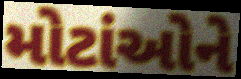
મોટાંઓને